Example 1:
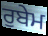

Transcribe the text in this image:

ਰੁਬੇਮ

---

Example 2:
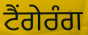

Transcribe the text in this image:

ਟੈਂਗੇਰੰਗ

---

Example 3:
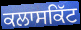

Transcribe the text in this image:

ਕਲਾਸਕਿੱਟ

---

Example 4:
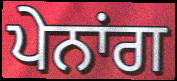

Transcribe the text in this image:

ਪੇਨਾਂਗ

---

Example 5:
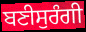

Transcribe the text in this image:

ਬਣੀਸੁਰੰਗੀ